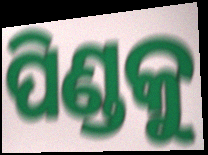
ପିଣ୍ଡକୁ